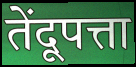
तेंदूपत्ता